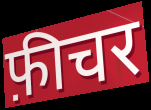
फ़ीचर